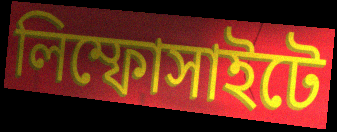
লিম্ফোসাইটে